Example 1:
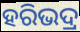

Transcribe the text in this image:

ହରିଭଦ୍ର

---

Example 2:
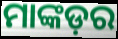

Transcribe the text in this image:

ମାଙ୍କଡ଼ର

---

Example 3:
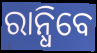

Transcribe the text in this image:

ରାନ୍ଧିବେ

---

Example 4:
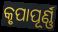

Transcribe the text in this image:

କୃପାପୂର୍ଣ୍ଣ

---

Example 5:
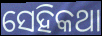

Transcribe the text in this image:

ସେହିକଥା